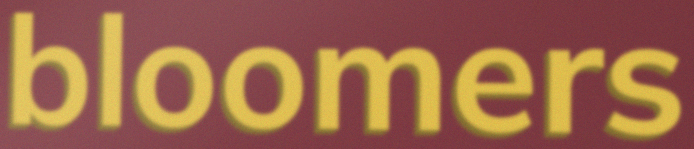
bloomers